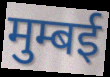
मुम्बई